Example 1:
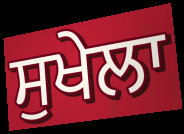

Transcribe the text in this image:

ਸੁਖੇਲਾ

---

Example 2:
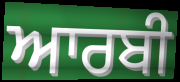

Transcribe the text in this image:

ਆਰਬੀ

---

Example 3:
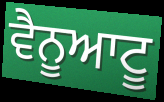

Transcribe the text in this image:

ਵੈਨੂਆਟੂ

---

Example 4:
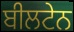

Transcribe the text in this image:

ਬੀਲਟੇਨ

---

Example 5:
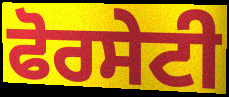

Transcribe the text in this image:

ਫੋਰਸੇਟੀ